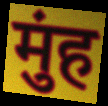
मुंह